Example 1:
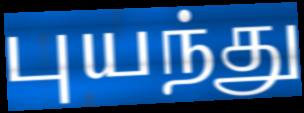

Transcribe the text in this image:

புயந்து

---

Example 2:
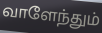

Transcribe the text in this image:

வாளேந்தும்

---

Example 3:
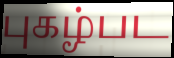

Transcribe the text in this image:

புகழ்பட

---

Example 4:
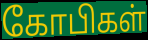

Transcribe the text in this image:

கோபிகள்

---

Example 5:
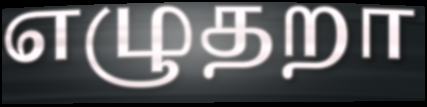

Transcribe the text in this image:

எழுதறா